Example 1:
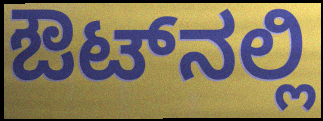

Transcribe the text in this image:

ಔಟ್‌ನಲ್ಲಿ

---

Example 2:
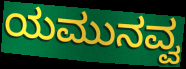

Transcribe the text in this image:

ಯಮುನವ್ವ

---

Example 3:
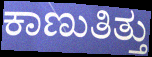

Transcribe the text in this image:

ಕಾಣುತಿತ್ತು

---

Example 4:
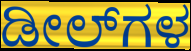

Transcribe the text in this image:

ಡೀಲ್‌ಗಳ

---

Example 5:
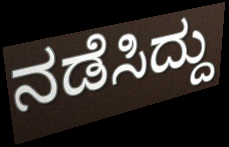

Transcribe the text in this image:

ನಡೆಸಿದ್ದು